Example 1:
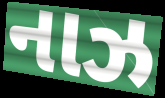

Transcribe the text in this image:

નાઝ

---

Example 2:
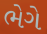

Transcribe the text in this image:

ભેગે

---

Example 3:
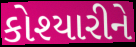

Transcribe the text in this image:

કોશ્યારીને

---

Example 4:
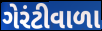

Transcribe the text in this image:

ગેરંટીવાળા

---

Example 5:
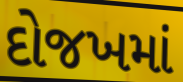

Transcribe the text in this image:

દોજખમાં